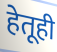
हेतूही